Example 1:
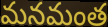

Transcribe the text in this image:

మనమంత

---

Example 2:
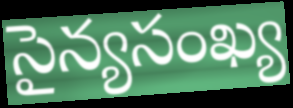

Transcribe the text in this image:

సైన్యసంఖ్య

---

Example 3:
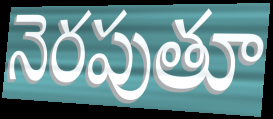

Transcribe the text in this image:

నెరపుతూ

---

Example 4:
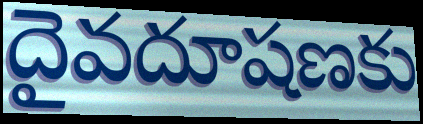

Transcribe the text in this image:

దైవదూషణకు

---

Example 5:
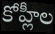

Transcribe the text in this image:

కోహ్లీల